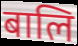
बालि